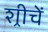
श्रीचें